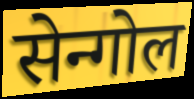
सेन्गोल